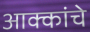
आक्कांचे